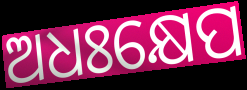
ଅଧଃକ୍ଷେପ